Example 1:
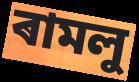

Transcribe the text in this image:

ৰামলু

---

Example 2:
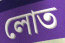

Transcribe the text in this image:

লোত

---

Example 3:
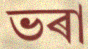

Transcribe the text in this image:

ভৰা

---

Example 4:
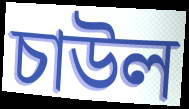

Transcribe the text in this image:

চাউল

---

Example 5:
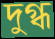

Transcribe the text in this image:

দুগ্ধ